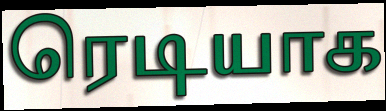
ரெடியாக